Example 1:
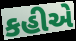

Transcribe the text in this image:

કહીએ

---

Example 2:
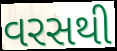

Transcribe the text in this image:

વરસથી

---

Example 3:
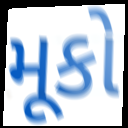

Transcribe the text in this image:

મૂકો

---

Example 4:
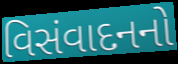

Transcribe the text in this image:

વિસંવાદનનો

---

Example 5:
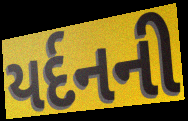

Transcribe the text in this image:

યર્દનની